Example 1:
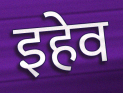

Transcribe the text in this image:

इहेव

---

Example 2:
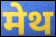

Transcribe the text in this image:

मेथ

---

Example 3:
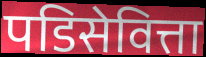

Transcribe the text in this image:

पडिसेवित्ता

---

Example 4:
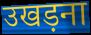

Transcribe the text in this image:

उखड़ना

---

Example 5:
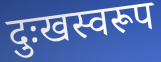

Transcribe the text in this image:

दुःखस्वरूप